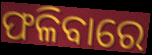
ଫଳିବାରେ